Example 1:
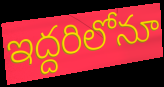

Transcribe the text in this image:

ఇద్దరిలోనూ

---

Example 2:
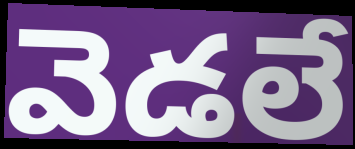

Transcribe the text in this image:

వెడలే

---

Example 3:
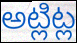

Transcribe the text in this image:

అట్లిట్ల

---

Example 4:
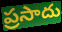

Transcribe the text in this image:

ప్రసాదు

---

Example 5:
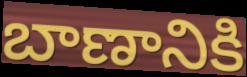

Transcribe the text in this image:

బాణానికి